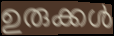
ഉരുക്കൾ